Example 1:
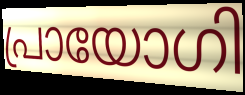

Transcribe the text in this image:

പ്രായോഗി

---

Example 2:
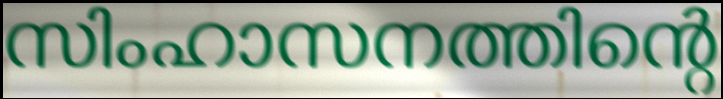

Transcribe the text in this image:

സിംഹാസനത്തിന്റെ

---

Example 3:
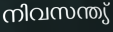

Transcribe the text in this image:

നിവസന്ത്യ്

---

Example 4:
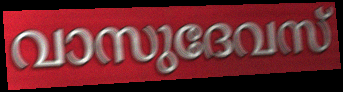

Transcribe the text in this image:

വാസുദേവസ്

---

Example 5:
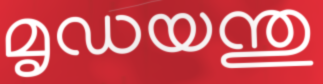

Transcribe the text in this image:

മൃഡയന്തു